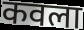
कवला